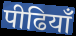
पीढियाँ